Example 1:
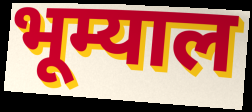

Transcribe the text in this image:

भूम्याल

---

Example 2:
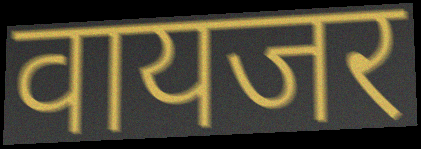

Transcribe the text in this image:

वायजर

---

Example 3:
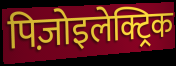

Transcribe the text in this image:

पिज़ोइलेक्ट्रिक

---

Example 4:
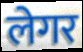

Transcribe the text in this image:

लेगर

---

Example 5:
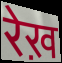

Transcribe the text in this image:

रेख़